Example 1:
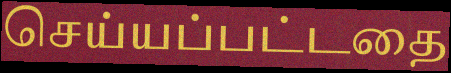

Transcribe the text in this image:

செய்யப்பட்டதை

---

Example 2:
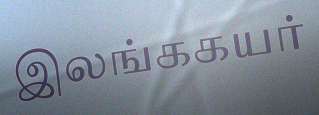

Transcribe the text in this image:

இலங்ககயர்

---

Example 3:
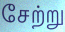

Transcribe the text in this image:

சேற்று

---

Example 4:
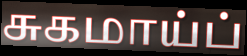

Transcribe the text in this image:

சுகமாய்ப்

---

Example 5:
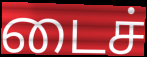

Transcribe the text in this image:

டைச்